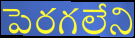
పెరగలేని